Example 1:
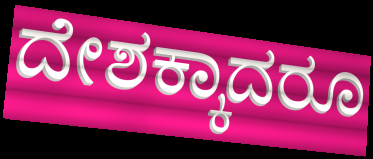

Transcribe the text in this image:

ದೇಶಕ್ಕಾದರೂ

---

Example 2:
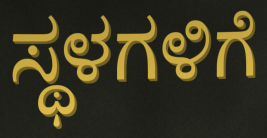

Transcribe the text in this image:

ಸ್ಥಳಗಳಿಗೆ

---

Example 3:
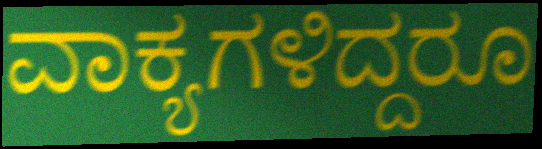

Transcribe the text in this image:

ವಾಕ್ಯಗಳಿದ್ದರೂ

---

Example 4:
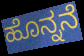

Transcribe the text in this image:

ಹೊನ್ನನೆ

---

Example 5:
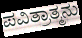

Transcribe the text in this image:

ಪವಿತ್ರಾತ್ಮನು